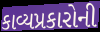
કાવ્યપ્રકારોની